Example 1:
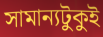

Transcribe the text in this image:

সামান্যটুকুই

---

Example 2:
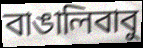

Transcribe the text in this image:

বাঙালিবাবু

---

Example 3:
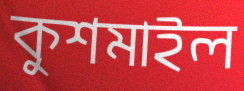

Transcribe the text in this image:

কুশমাইল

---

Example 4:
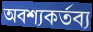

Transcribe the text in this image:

অবশ্যকর্তব্য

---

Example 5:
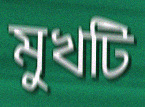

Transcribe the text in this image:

মুখটি